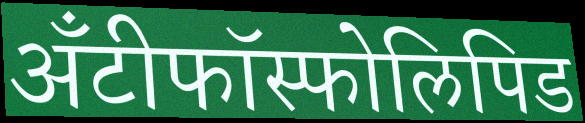
अँटीफॉस्फोलिपिड